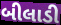
બીલાડી